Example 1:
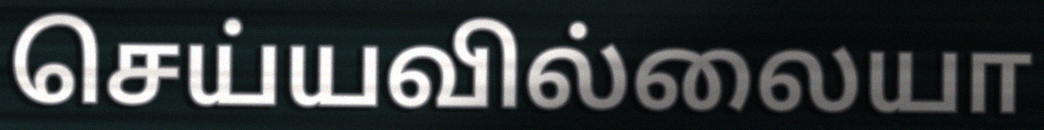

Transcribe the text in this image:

செய்யவில்லையா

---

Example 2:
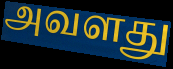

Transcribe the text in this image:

அவளது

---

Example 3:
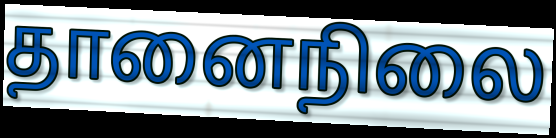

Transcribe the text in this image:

தானைநிலை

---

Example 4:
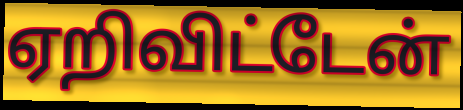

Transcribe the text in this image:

ஏறிவிட்டேன்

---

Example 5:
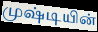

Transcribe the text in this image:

முஷ்டியின்